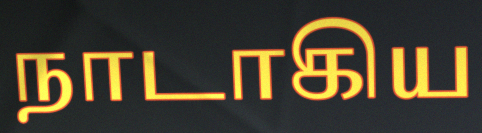
நாடாகிய